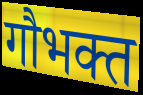
गौभक्त